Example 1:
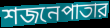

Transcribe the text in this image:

শজনেপাতার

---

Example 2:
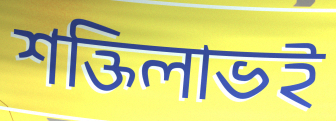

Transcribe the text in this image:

শক্তিলাভই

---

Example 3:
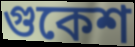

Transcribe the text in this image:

গুকেশ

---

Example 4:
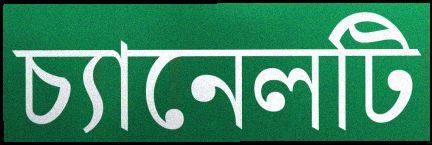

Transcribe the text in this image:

চ্যানেলটি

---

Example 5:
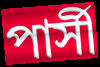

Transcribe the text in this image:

পার্সী